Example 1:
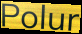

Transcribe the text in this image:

Polur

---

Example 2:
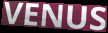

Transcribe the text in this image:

VENUS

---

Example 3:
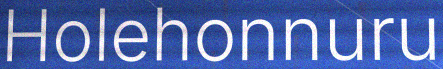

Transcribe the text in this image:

Holehonnuru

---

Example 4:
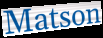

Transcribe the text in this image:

Matson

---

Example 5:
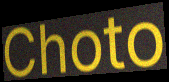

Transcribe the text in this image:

Choto